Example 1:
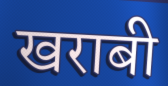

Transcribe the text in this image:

खराबी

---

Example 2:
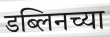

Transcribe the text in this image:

डब्लिनच्या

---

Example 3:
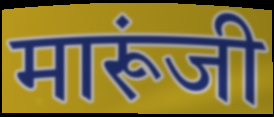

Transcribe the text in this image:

मारूंजी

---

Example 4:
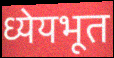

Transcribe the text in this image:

ध्येयभूत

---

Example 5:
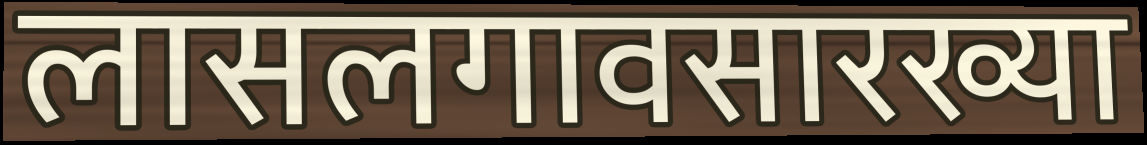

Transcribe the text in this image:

लासलगावसारख्या